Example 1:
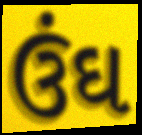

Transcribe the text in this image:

ઉંઘ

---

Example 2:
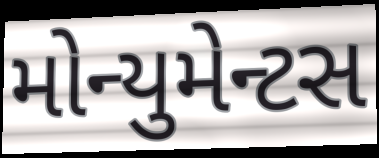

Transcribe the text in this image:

મોન્યુમેન્ટસ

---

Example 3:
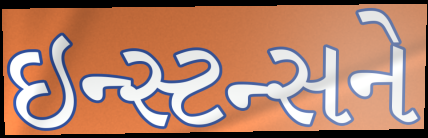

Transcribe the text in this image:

ઇન્સ્ટન્સને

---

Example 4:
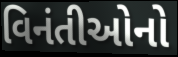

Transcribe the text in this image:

વિનંતીઓનો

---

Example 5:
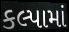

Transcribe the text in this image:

કલ્પામાં